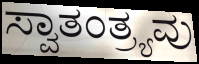
ಸ್ವಾತಂತ್ರ್ಯವು